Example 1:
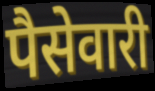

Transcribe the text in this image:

पैसेवारी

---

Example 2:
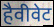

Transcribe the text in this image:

हैवीवेट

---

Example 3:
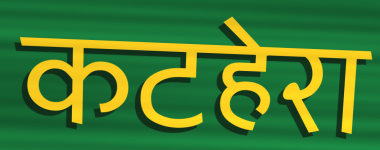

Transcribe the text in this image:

कटहेरा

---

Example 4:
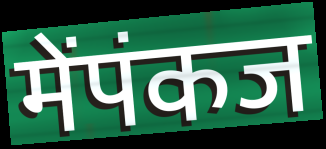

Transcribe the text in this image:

मेंपंकज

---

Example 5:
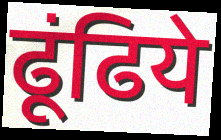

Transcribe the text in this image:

ढूंढिये